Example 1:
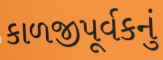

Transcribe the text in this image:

કાળજીપૂર્વકનું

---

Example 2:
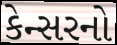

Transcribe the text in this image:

કેન્સરનો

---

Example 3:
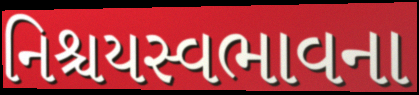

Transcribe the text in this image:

નિશ્ચયસ્વભાવના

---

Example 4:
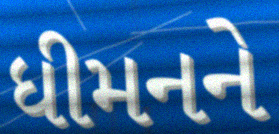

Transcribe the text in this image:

ધીમનને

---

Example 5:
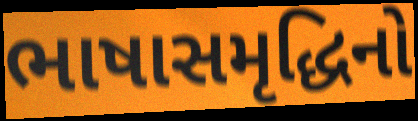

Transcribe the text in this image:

ભાષાસમૃદ્ધિનો